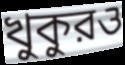
খুকুরও